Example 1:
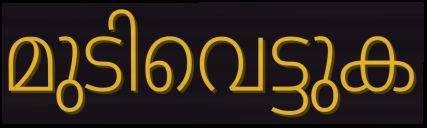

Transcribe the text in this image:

മുടിവെട്ടുക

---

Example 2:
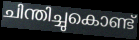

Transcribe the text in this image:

ചിന്തിച്ചുകൊണ്ട്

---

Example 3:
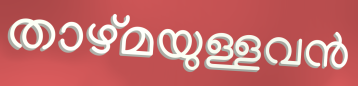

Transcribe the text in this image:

താഴ്മയുള്ളവൻ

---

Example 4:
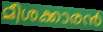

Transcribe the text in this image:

മീശക്കാരൻ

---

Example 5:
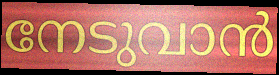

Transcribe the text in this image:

നേടുവാൻ